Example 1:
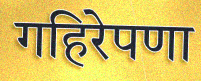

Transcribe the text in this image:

गहिरेपणा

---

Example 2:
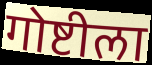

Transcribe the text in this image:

गोष्टीला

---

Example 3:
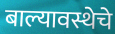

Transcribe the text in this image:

बाल्यावस्थेचे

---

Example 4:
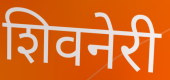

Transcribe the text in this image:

शिवनेरी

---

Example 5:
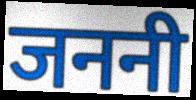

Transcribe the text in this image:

जननी